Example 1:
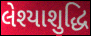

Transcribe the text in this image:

લેશ્યાશુદ્ધિ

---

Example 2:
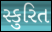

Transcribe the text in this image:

સ્કુરિત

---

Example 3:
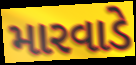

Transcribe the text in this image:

મારવાડે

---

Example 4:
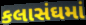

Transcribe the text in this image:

કલાસંઘમાં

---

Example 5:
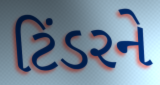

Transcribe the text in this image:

ટિંડરને